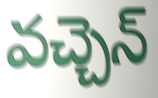
వచ్చెన్